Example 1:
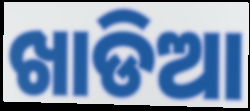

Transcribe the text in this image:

ଖାଡିଆ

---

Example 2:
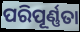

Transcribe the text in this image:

ପରିପୂର୍ଣ୍ଣତା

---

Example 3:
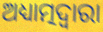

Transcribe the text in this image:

ଅଧ୍ୟାତ୍ମଦ୍ୱାରା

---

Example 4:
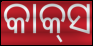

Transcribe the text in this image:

କାକ୍‌ସ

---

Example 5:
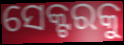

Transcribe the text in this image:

ସେକ୍ଟରକୁ